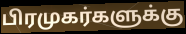
பிரமுகர்களுக்கு